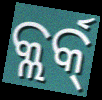
କ୍ଲର୍କ୍